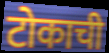
टोकाची